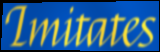
Imitates